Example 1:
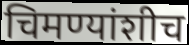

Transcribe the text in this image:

चिमण्यांशीच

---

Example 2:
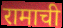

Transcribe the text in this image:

रामाची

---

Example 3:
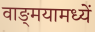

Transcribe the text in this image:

वाङ्‌मयामध्यें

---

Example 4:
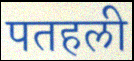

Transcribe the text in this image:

पतहली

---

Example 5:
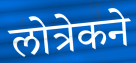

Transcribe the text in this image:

लोत्रेकने